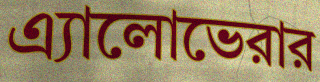
এ্যালোভেরার